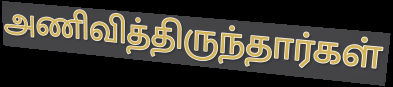
அணிவித்திருந்தார்கள்